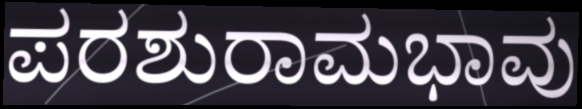
ಪರಶುರಾಮಭಾವು